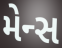
મેન્સ